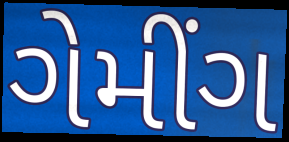
ગેમીંગ